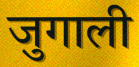
जुगाली